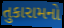
તુકારામનો